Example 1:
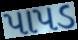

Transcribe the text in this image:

પાપડ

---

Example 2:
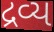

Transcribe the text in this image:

દ્રવ્ય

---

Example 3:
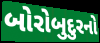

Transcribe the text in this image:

બોરોબુદુરનો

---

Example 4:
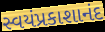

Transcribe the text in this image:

સ્વયંપ્રકાશાનંદ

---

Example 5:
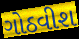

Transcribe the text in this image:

ગોઠવીશ